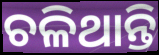
ଚଳିଥାନ୍ତି